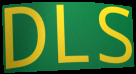
DLS